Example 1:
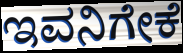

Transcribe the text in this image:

ಇವನಿಗೇಕೆ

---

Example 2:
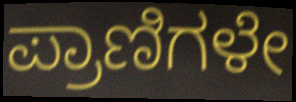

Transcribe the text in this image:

ಪ್ರಾಣಿಗಳೇ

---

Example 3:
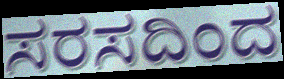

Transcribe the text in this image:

ಸರಸದಿಂದ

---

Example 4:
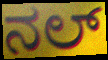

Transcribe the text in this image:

ನಲ್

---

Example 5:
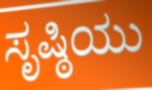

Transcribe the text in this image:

ಸೃಷ್ಠಿಯು